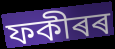
ফকীৰৰ